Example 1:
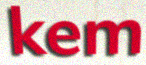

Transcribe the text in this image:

kem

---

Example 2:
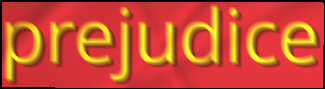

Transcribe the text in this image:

prejudice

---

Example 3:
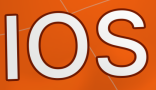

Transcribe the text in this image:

IOS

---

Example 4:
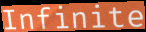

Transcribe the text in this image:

Infinite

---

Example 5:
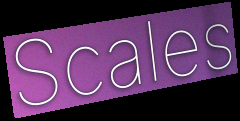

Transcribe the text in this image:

Scales